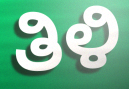
ತಿಳಿ